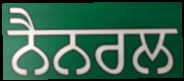
ਨੈਨਰਲ